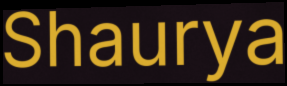
Shaurya